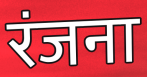
रंजना